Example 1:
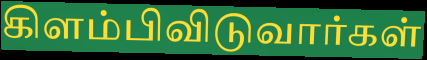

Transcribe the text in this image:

கிளம்பிவிடுவார்கள்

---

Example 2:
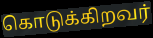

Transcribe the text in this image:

கொடுக்கிறவர்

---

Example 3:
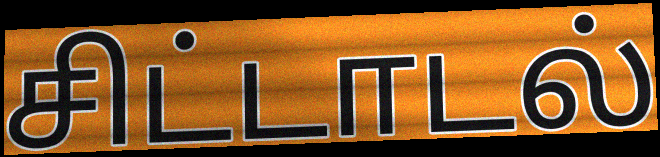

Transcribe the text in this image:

சிட்டாடல்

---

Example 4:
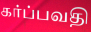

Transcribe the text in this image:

கர்ப்பவதி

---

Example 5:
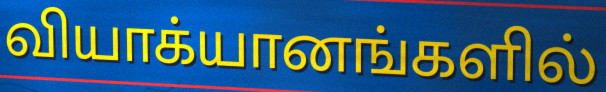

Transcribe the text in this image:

வியாக்யானங்களில்